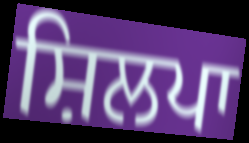
ਸ਼ਿਲਪਾ